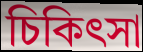
চিকিৎসা